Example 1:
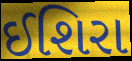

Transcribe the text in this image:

ઈશિરા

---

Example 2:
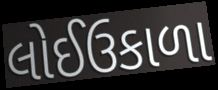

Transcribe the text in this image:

લોઈઉકાળા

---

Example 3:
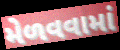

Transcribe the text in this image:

મેળવવામાં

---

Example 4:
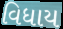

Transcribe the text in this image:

વિધાય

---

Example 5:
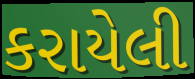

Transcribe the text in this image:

કરાયેલી